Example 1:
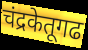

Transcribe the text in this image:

चंद्रकेतूगढ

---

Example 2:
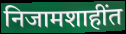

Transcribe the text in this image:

निजामशाहींत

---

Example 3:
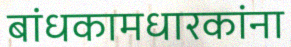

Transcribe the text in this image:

बांधकामधारकांना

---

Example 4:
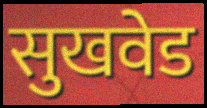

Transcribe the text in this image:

सुखवेड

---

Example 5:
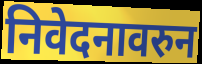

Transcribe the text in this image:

निवेदनावरुन